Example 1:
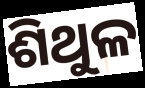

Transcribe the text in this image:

ଶିଥୁଳ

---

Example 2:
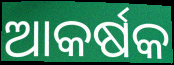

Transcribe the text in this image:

ଆକର୍ଷକ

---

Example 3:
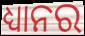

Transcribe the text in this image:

ଧ୍ୟାନର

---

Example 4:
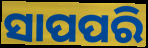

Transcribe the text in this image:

ସାପପରି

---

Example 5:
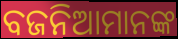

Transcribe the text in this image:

ବଜନିଆମାନଙ୍କ